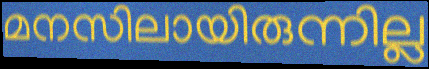
മനസിലായിരുന്നില്ല